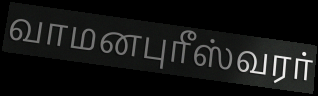
வாமனபுரீஸ்வரர்